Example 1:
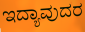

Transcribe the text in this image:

ಇದ್ಯಾವುದರ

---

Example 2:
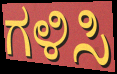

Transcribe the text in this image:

ಗಳಿಸಿ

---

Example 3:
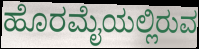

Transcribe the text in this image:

ಹೊರಮೈಯಲ್ಲಿರುವ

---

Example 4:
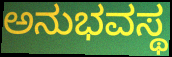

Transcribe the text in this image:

ಅನುಭವಸ್ಥ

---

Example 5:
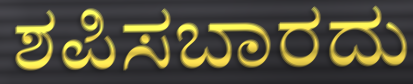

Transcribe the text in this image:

ಶಪಿಸಬಾರದು